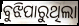
ବୁଝିପାରୁଥିଲା